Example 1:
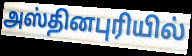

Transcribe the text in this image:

அஸ்தினபுரியில்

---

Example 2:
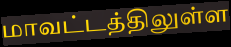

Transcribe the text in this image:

மாவட்டத்திலுள்ள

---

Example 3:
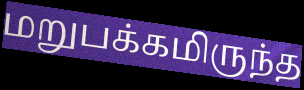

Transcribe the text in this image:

மறுபக்கமிருந்த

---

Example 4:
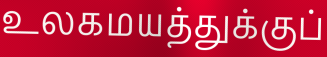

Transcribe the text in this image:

உலகமயத்துக்குப்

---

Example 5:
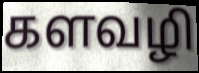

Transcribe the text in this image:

களவழி